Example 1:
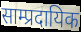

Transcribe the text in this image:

साम्प्रदायिक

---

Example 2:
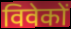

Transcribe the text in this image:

विवेकों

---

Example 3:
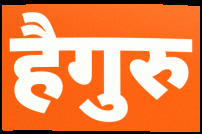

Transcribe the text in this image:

हैगुरु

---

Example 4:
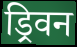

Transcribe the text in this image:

ड्रिवन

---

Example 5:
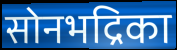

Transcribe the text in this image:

सोनभद्रिका